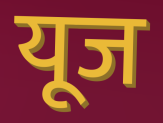
यूज